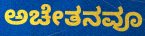
ಅಚೇತನವೂ